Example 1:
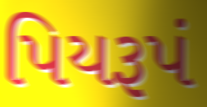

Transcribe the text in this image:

પિયરૂપં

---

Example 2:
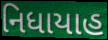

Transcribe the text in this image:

નિધાયાહ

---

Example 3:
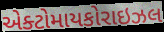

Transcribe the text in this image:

એક્ટોમાયકોરાઇઝલ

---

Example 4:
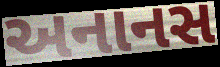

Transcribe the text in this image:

અનાનસ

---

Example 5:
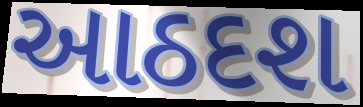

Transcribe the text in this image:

આઠદશ